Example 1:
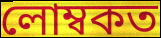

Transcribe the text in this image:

লোম্বকত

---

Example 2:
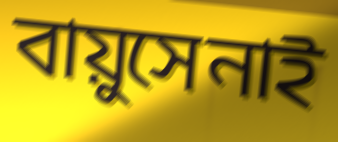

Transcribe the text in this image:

বায়ুসেনাই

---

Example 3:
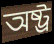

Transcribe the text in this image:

অষ্ট্ৰ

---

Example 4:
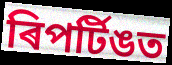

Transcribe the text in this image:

ৰিপৰ্টিঙত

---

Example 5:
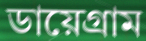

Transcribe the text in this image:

ডায়েগ্ৰাম